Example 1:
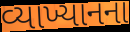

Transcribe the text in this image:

વ્યાખ્યાનના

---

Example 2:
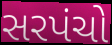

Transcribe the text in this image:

સરપંચો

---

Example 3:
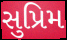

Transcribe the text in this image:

સુપ્રિમ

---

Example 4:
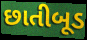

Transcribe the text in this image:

છાતીબૂડ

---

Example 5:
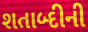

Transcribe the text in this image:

શતાબ્દીની